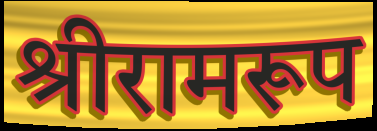
श्रीरामरूप